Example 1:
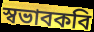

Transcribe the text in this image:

স্বভাবকবি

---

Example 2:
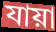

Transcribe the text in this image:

যায়া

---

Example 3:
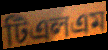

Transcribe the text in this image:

টিএলএম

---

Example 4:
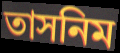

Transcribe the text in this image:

তাসনিম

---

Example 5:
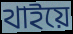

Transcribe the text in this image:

থাইয়ে